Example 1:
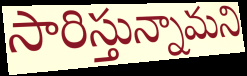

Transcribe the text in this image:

సారిస్తున్నామని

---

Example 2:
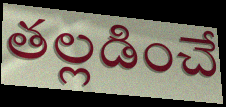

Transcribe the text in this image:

తల్లడించే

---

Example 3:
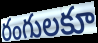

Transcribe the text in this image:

రంగులకూ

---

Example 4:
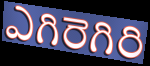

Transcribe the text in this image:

ఎగిరెగిరి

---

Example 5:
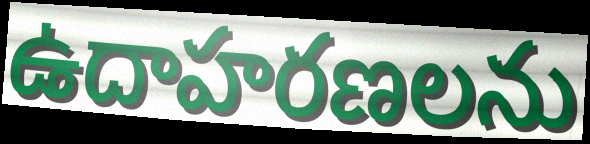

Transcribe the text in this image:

ఉదాహరణలను